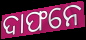
ଦାଫନେ